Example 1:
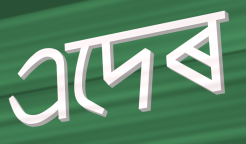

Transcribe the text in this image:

এদেৰ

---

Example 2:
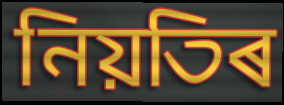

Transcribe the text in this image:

নিয়তিৰ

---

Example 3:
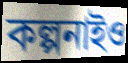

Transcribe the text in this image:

কল্পনাইও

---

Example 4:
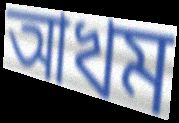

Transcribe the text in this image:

আখম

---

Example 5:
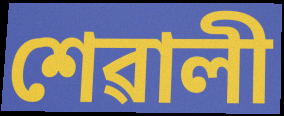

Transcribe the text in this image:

শেৱালী